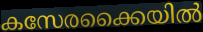
കസേരക്കൈയിൽ